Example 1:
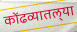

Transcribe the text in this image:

कोंढव्यातल्या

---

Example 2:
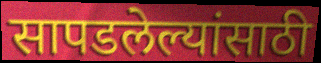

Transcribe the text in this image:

सापडलेल्यांसाठी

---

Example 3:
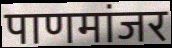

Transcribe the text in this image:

पाणमांजर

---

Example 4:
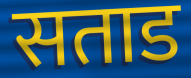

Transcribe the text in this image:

सताड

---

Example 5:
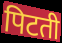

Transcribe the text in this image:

पिटती